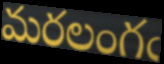
మరలంగఁ